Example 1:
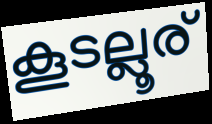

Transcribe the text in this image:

കൂടല്ലൂര്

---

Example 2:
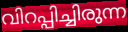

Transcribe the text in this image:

വിറപ്പിച്ചിരുന്ന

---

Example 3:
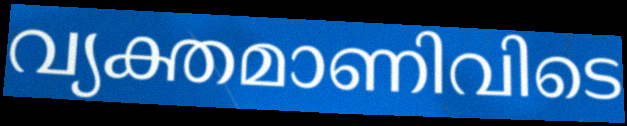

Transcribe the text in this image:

വ്യക്തമാണിവിടെ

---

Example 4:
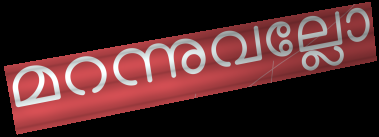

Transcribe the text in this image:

മറന്നുവല്ലോ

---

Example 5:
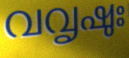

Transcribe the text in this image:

വവൃഷുഃ